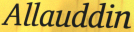
Allauddin